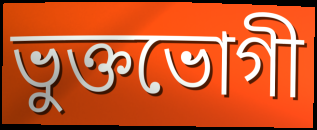
ভুক্তভোগী